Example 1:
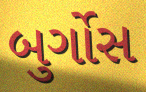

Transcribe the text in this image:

બુર્ગોસ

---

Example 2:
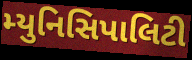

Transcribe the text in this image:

મ્યુનિસિપાલિટી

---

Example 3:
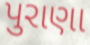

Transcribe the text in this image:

પુરાણા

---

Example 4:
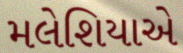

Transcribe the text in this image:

મલેશિયાએ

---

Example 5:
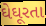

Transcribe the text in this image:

ઘેઘૂરતા